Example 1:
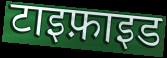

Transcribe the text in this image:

टाइफ़ाइड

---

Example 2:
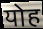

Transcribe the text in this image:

योह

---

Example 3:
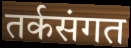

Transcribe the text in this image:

तर्कसंगत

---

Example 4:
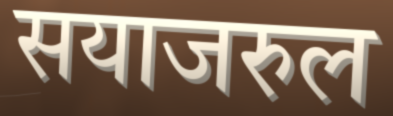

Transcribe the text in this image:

सयाजरुल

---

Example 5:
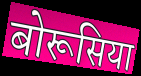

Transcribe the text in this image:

बोरूसिया